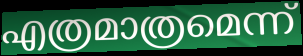
എത്രമാത്രമെന്ന്